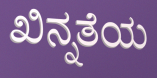
ಖಿನ್ನತೆಯ